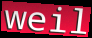
weil